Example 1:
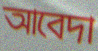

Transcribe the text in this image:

আবেদা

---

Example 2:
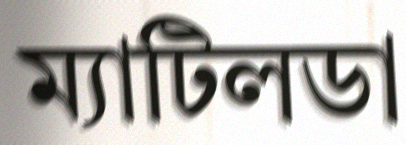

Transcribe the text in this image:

ম্যাটিলডা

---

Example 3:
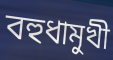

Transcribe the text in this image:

বহুধামুখী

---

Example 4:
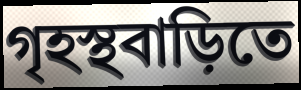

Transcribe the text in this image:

গৃহস্থবাড়িতে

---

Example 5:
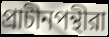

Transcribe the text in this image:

প্রাচীনপন্থীরা